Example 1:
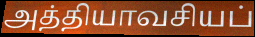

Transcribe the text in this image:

அத்தியாவசியப்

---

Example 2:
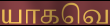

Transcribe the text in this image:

யாகவெ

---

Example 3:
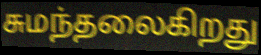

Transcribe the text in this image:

சுமந்தலைகிறது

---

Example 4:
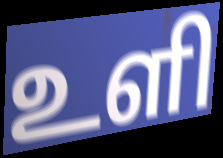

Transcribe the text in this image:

உளி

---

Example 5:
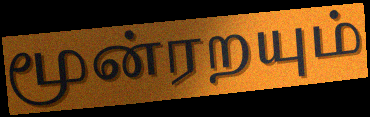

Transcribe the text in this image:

மூன்ரறயும்